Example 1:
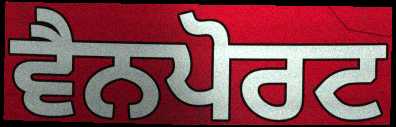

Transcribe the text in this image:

ਵੈਨਪੋਰਟ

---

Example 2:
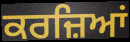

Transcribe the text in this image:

ਕਰਜ਼ਿਆਂ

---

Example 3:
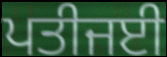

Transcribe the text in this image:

ਪਤੀਜਈ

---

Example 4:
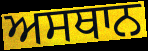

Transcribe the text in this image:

ਅਸਥਾਨ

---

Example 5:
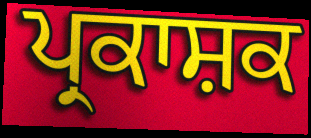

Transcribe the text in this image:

ਪ੍ਰਕਾਸ਼ਕ